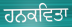
ਹਨਕਵਿਤਾ